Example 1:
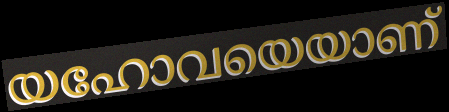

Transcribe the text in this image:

യഹോവയെയാണ്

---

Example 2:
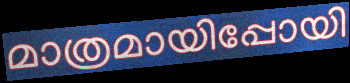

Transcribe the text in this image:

മാത്രമായിപ്പോയി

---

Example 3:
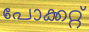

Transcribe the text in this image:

പോക്കറ്റ്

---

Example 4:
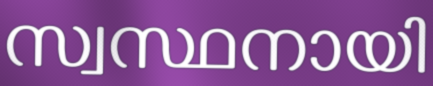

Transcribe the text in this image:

സ്വസ്ഥനായി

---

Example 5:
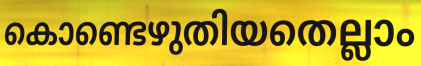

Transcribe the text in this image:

കൊണ്ടെഴുതിയതെല്ലാം